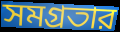
সমগ্রতার